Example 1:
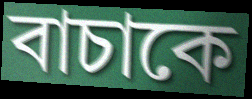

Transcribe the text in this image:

বাচাকে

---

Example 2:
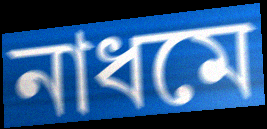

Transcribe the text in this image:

নাধমে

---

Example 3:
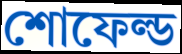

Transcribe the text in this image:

শোফেল্ড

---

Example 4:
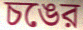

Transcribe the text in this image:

চঙের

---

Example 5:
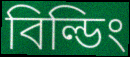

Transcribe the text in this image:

বিল্ডিং